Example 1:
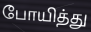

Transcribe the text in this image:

போயித்து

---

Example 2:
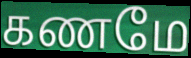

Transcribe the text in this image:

கணமே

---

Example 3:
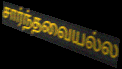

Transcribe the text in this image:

சார்ந்தவையல்ல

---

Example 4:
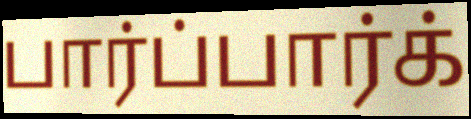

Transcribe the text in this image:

பார்ப்பார்க்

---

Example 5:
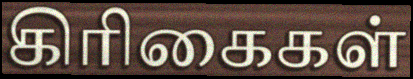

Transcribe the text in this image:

கிரிகைகள்